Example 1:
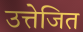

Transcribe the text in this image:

उत्तेजित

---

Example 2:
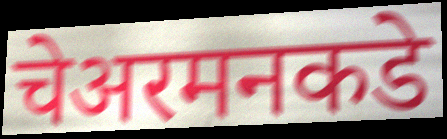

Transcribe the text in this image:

चेअरमनकडे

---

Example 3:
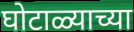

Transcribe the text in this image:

घोटाळ्याच्या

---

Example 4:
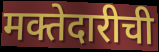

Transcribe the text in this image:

मक्तेदारीची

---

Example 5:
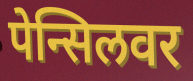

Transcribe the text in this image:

पेन्सिलवर